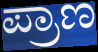
ಪ್ರಾಣ